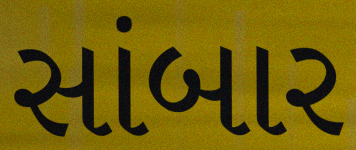
સાંબાર